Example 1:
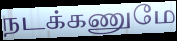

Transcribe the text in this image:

நடக்கணுமே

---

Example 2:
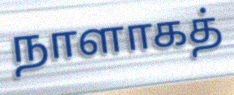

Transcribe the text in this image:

நாளாகத்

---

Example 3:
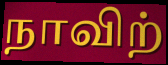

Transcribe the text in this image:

நாவிற்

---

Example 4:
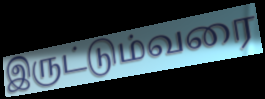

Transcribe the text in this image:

இருட்டும்வரை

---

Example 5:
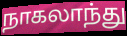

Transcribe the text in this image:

நாகலாந்து